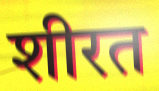
शीरत